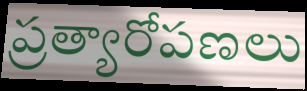
ప్రత్యారోపణలు